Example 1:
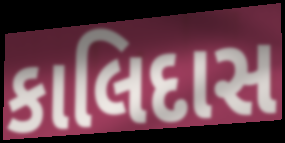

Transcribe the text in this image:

કાલિદાસ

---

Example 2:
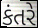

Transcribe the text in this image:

કંતરે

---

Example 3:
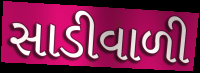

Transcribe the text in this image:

સાડીવાળી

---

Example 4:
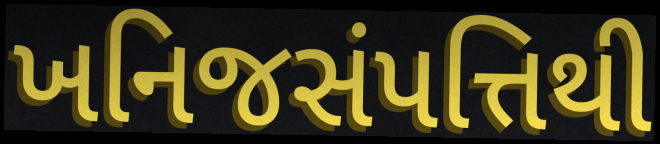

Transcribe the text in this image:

ખનિજસંપત્તિથી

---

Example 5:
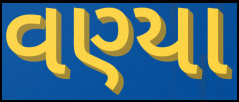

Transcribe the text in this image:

વણ્યા